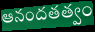
ఆనందతత్వం